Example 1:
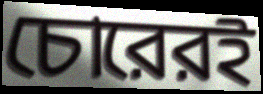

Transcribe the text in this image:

চোরেরই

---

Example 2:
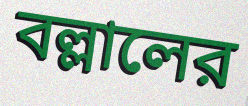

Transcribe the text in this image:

বল্লালের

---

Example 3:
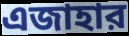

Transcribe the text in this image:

এজাহার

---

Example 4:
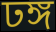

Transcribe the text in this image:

ঢঙ্গ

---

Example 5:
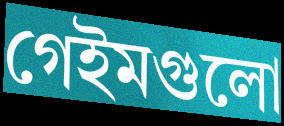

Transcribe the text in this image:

গেইমগুলো